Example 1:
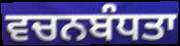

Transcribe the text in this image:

ਵਚਨਬੰਧਤਾ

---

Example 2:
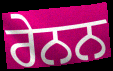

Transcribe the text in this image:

ਰੇਨਨ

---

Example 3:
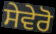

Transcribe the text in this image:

ਸੇਵੇਰੋ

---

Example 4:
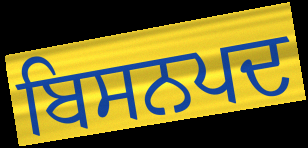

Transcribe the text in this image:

ਬਿਸਨਪਦ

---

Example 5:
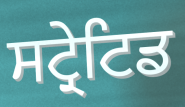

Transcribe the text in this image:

ਸਟ੍ਰੇਟਿਡ